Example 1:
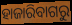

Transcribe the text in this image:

ହାଜାରିବାଗରୁ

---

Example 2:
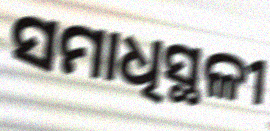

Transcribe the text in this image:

ସମାଧିସ୍ଥଳୀ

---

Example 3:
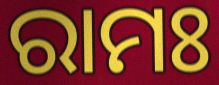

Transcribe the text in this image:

ରାମଃ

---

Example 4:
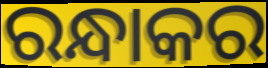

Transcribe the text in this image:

ରନ୍ଧାକର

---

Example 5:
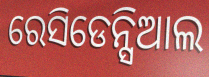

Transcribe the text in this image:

ରେସିଡେନ୍ସିଆଲ